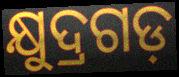
କ୍ଷୁଦ୍ରଗଡ଼